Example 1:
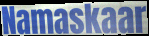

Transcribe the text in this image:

Namaskaar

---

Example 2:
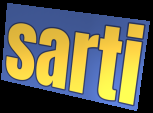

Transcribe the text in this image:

sarti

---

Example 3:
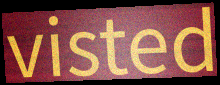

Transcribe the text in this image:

visted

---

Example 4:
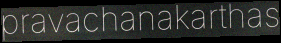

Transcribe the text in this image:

pravachanakarthas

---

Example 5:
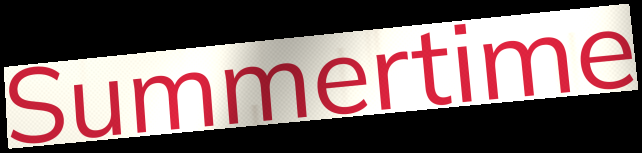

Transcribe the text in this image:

Summertime